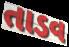
તાડવ